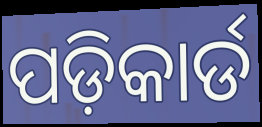
ପଡ଼ିକାର୍ଡ